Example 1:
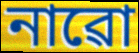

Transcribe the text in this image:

নাৱো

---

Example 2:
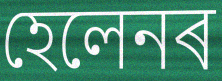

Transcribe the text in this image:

হেলেনৰ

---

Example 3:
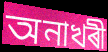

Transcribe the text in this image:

অনাখৰী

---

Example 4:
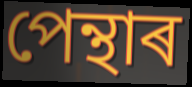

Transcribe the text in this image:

পেন্থাৰ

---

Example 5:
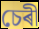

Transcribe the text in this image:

চেৰী